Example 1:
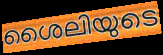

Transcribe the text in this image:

ശൈലിയുടെ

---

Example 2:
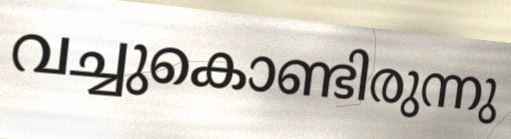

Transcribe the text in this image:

വച്ചുകൊണ്ടിരുന്നു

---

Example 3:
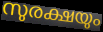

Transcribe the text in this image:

സുരക്ഷയും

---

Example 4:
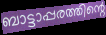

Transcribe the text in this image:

ബാട്ടാപ്പരത്തിന്റെ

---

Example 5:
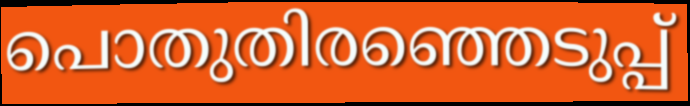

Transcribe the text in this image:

പൊതുതിരഞ്ഞെടുപ്പ്